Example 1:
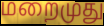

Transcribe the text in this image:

மறைமுது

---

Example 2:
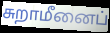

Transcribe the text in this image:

சுறாமீனைப்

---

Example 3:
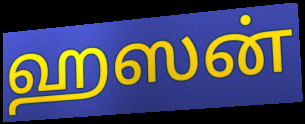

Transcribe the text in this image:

ஹஸன்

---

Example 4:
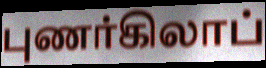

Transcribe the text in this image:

புணர்கிலாப்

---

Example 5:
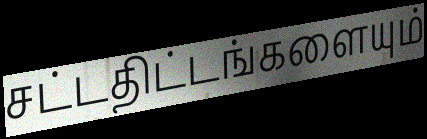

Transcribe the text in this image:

சட்டதிட்டங்களையும்